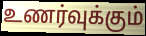
உணர்வுக்கும்